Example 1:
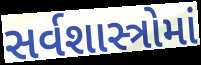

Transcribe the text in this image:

સર્વશાસ્ત્રોમાં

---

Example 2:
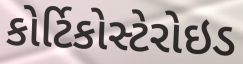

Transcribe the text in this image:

કોર્ટિકોસ્ટેરોઇડ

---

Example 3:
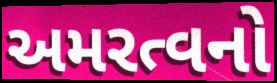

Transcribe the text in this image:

અમરત્વનો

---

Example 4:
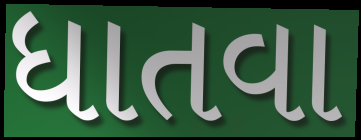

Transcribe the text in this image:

ધાતવા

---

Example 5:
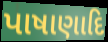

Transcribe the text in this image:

પાષાણાદિ